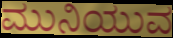
ಮುನಿಯುವ